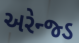
અરેન્જ્ડ